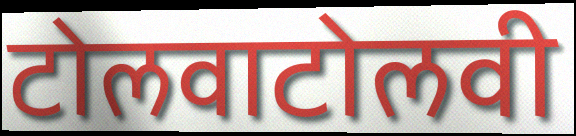
टोलवाटोलवी